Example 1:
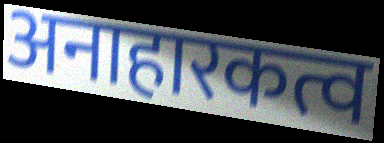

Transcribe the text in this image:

अनाहारकत्व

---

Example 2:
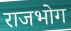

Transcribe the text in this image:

राजभोग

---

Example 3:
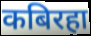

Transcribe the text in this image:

कबिरहा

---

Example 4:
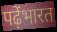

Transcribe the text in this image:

पढ़ेंभारत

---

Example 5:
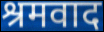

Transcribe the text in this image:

श्रमवाद